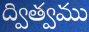
ద్విత్వము